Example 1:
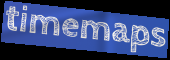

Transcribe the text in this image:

timemaps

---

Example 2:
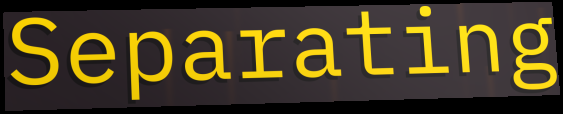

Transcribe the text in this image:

Separating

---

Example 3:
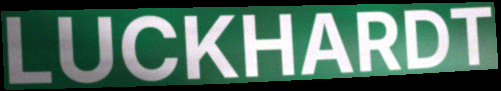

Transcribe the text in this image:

LUCKHARDT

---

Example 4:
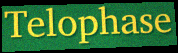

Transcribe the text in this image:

Telophase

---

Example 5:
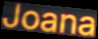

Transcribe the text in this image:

Joana